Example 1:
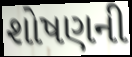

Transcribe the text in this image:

શોષણની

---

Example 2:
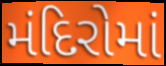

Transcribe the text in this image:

મંદિરોમાં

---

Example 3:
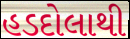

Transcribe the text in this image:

હડદોલાથી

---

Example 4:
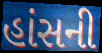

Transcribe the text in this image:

હાંસની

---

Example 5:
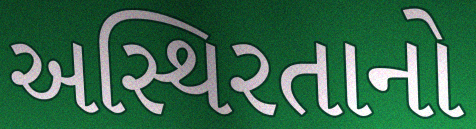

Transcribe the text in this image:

અસ્થિરતાનો